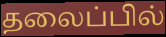
தலைப்பில்